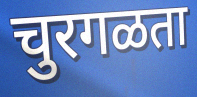
चुरगळता